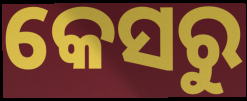
କେସରୁ